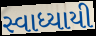
સ્વાધ્યાયી